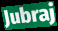
Jubraj